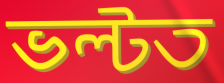
ভল্টত